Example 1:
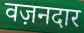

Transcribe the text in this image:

वज़नदार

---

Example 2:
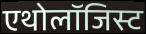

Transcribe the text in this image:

एथोलॉजिस्ट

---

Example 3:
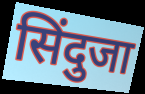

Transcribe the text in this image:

सिंदुजा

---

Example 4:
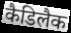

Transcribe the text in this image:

कैडिलैक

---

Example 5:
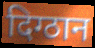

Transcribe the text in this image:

दिग्ठान